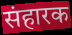
संहारक